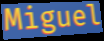
Miguel